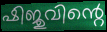
ഷിജുവിന്റെ